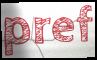
pref